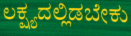
ಲಕ್ಷ್ಯದಲ್ಲಿಡಬೇಕು